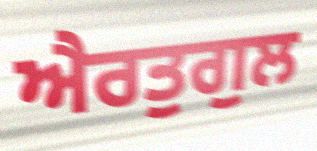
ਐਰਤੁਗੁਲ